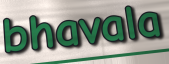
bhavala